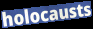
holocausts